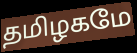
தமிழகமே